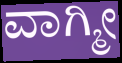
ವಾಗ್ಮೀ